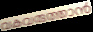
വകവരുത്താൻ